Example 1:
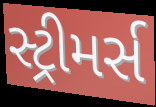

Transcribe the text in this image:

સ્ટ્રીમર્સ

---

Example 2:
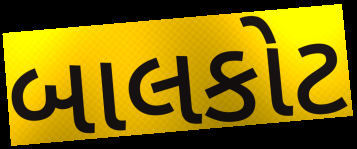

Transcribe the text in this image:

બાલકોટ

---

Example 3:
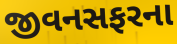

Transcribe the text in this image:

જીવનસફરના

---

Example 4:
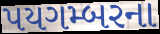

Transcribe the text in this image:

પયગમ્બરના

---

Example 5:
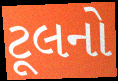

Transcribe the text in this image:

ટૂલનો